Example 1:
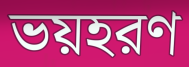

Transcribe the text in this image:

ভয়হরণ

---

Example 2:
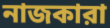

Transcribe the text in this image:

নাজকারা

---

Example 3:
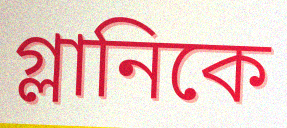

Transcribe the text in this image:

গ্লানিকে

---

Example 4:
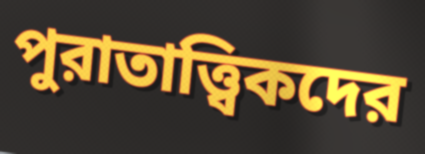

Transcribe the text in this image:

পুরাতাত্ত্বিকদের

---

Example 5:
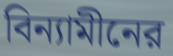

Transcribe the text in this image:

বিন্যামীনের